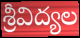
శ్రీవిద్యల